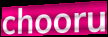
chooru